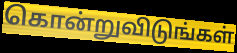
கொன்றுவிடுங்கள்